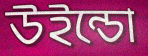
উইন্ডো